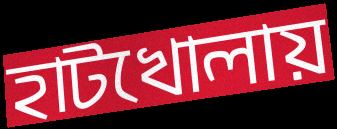
হাটখোলায়